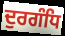
ਦੁਰਗੰਧਿ